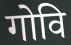
गोवि